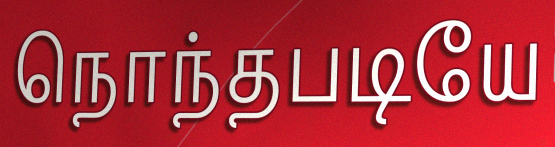
நொந்தபடியே